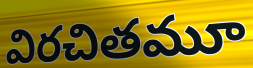
విరచితమూ